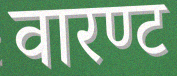
वारण्ट